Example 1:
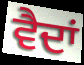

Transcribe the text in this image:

ਵੈਦਾਂ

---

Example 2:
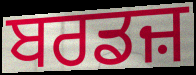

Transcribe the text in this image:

ਬਰਡਜ਼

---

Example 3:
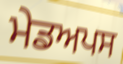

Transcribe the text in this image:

ਮੇਡਅਪਸ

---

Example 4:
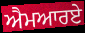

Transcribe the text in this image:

ਐਮਆਰਏ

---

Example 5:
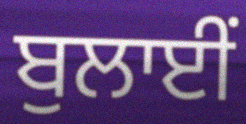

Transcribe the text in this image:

ਬੁਲਾਈਂ